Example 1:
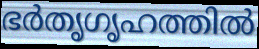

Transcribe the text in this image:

ഭർതൃഗൃഹത്തിൽ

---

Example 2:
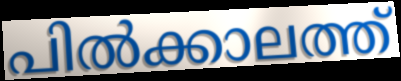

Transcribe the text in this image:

പിൽക്കാലത്ത്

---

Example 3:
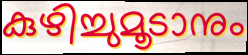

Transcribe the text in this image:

കുഴിച്ചുമൂടാനും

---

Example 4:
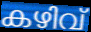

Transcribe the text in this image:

കഴിവ്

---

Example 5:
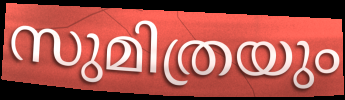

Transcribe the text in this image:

സുമിത്രയും